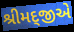
શ્રીમદ્જીએ